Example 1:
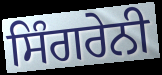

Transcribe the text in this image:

ਸਿੰਗਰੇਨੀ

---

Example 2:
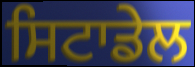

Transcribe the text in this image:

ਸਿਟਾਡੇਲ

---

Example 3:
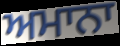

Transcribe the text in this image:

ਅਮਾਨਾ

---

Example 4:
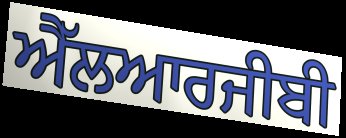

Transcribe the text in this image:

ਐੱਲਆਰਜੀਬੀ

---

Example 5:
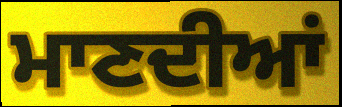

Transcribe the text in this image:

ਮਾਣਦੀਆਂ